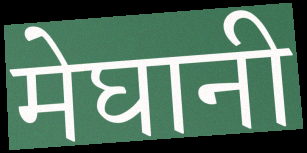
मेघानी